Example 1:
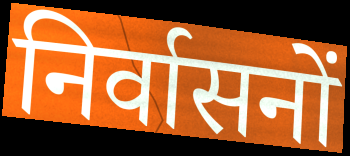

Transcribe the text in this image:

निर्वासनों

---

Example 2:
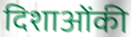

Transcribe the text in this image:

दिशाओंकी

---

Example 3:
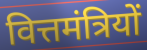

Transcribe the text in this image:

वित्तमंत्रियों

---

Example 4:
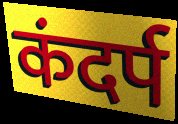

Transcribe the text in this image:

कंदर्प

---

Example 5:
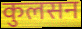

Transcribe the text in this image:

कुलसन